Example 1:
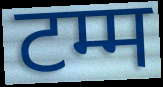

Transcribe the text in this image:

टम्म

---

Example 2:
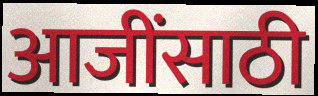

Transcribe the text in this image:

आजींसाठी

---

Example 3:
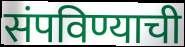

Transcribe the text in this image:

संपविण्याची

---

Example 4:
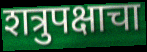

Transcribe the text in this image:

शत्रुपक्षाचा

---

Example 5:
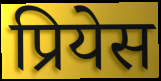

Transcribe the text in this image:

प्रियेस